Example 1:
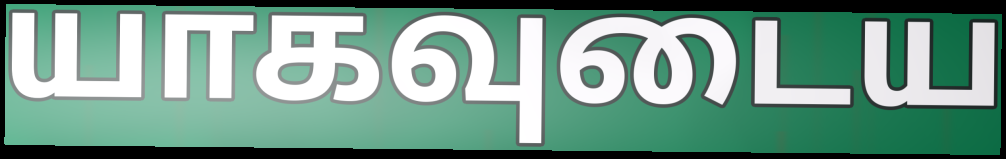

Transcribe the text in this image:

யாகவுடைய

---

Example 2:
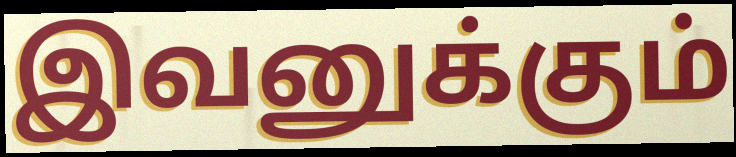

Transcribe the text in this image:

இவனுக்கும்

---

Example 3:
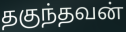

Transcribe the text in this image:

தகுந்தவன்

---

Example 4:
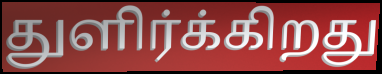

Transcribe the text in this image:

துளிர்க்கிறது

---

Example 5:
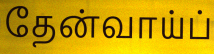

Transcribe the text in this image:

தேன்வாய்ப்